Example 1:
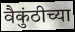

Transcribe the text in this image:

वैकुंठीच्या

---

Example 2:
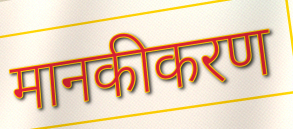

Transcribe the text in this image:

मानकीकरण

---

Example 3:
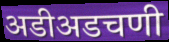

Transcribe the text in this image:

अडीअडचणी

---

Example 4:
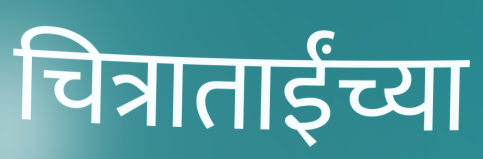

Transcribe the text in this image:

चित्राताईंच्या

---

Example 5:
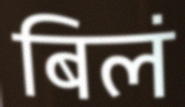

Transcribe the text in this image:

बिलं